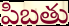
పిబతు